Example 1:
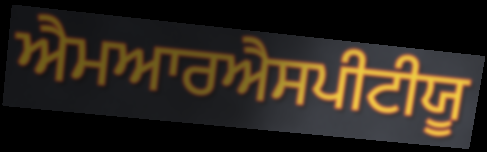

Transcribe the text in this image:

ਐਮਆਰਐਸਪੀਟੀਯੂ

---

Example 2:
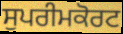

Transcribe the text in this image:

ਸੁਪਰੀਮਕੋਰਟ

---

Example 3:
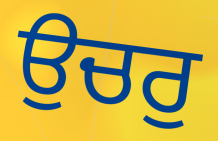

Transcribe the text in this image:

ਉਚਰੁ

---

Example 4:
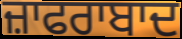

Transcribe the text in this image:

ਜ਼ਾਫਰਾਬਾਦ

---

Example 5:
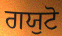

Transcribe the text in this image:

ਗਯੁਟੋ